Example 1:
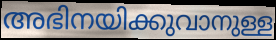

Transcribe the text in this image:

അഭിനയിക്കുവാനുള്ള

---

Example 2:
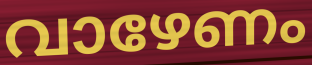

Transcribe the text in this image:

വാഴേണം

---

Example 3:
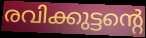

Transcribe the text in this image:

രവിക്കുട്ടന്റെ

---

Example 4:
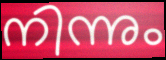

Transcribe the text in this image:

നിന്നും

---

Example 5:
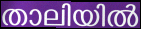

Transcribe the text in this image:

താലിയിൽ